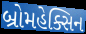
બ્રોમહેક્સિન